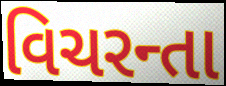
વિચરન્તા